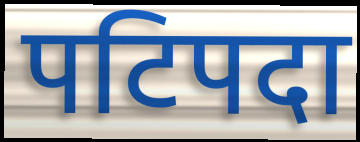
पटिपदा